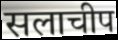
सलाचीप